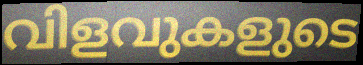
വിളവുകളുടെ